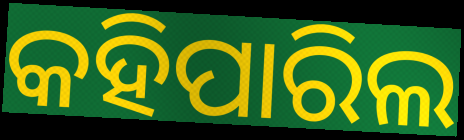
କହିପାରିଲ